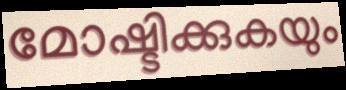
മോഷ്ടിക്കുകയും